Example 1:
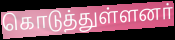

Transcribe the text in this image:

கொடுத்துள்ளனர்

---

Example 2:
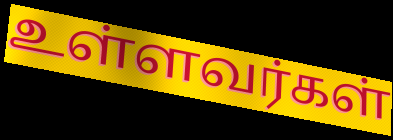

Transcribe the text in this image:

உள்ளவர்கள்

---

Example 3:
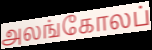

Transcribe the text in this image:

அலங்கோலப்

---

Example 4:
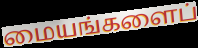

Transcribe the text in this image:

மையங்களைப்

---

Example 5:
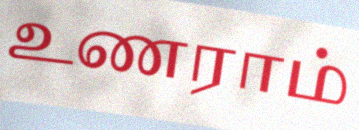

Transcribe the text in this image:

உணராம்